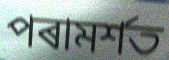
পৰামৰ্শত